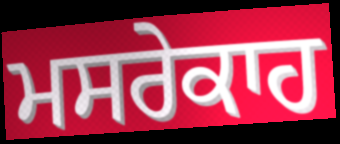
ਮਸਰੇਕਾਹ